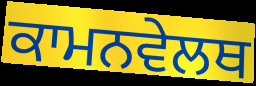
ਕਾਮਨਵੇਲਥ